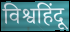
विश्वहिंदू